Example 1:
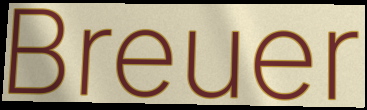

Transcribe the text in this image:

Breuer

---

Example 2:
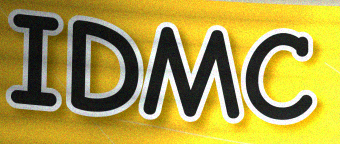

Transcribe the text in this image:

IDMC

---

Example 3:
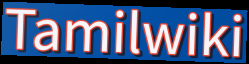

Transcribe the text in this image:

Tamilwiki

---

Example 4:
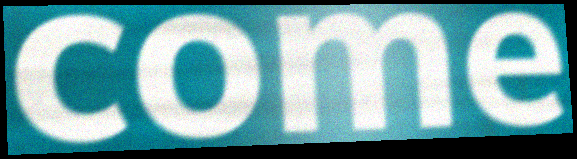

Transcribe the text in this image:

come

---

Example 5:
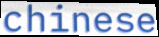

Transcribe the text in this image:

chinese